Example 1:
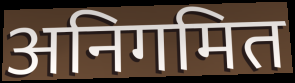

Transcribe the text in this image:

अनिगमित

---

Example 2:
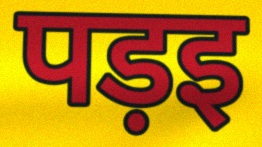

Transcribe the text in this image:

पड़इ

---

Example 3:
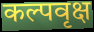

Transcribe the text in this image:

कल्‍पवृक्ष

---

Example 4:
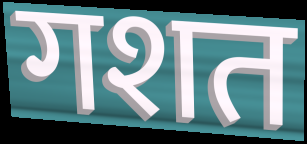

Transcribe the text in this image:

गशत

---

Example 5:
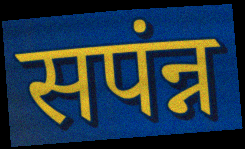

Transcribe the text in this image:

सपंन्न